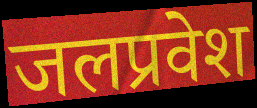
जलप्रवेश